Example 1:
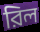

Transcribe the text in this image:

রিল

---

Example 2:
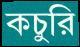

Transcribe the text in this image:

কচুরি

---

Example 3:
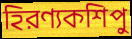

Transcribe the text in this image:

হিরণ্যকশিপু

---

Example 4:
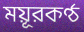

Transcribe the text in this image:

ময়ূরকণ্ঠ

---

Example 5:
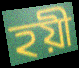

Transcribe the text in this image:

হয়ী